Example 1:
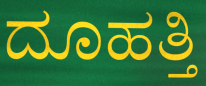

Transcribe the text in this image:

ದೂಹತ್ತಿ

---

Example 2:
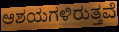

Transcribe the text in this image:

ಆಶಯಗಳಿರುತ್ತವೆ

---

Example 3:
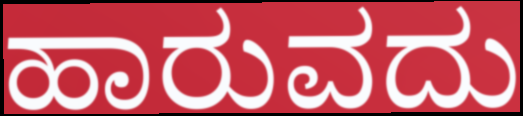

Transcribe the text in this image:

ಹಾರುವದು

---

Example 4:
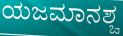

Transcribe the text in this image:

ಯಜಮಾನಶ್ಚ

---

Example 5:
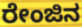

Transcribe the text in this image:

ರೇಂಜಿನ